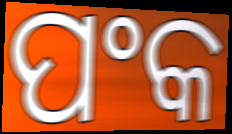
ପଂକ